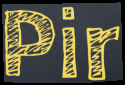
Pir